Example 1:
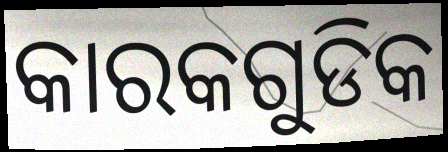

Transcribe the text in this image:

କାରକଗୁଡିକ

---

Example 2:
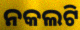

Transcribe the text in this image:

ନକଲଟି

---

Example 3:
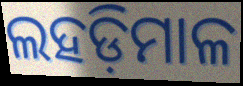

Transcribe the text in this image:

ଲହଡ଼ିମାଳ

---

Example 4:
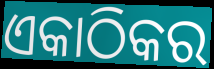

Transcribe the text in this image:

ଏକାଠିକର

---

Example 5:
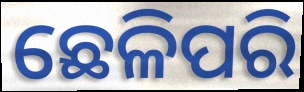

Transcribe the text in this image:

ଛେଳିପରି